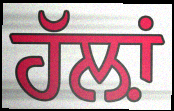
ਹੱਲ਼ਾਂ